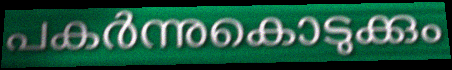
പകർന്നുകൊടുക്കും